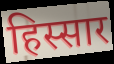
हिस्सार